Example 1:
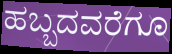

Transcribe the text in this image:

ಹಬ್ಬದವರೆಗೂ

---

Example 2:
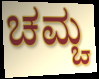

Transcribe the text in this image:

ಚಮ್ಚ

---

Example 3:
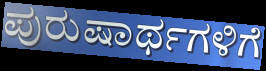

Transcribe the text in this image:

ಪುರುಷಾರ್ಥಗಳಿಗೆ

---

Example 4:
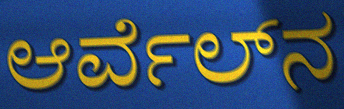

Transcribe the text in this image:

ಆರ್ವೆಲ್‍ನ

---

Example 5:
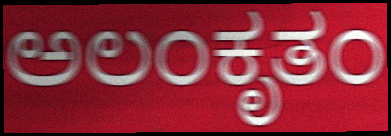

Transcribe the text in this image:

ಅಲಂಕೃತಂ